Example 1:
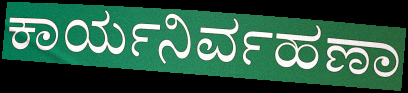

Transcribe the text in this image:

ಕಾರ್ಯನಿರ್ವಹಣಾ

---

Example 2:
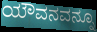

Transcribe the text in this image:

ಯೌವನವನ್ನೂ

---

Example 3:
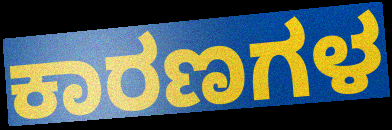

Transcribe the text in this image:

ಕಾರಣಗಳ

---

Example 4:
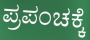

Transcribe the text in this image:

ಪ್ರಪಂಚಕ್ಕೆ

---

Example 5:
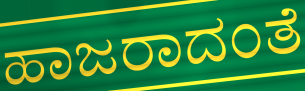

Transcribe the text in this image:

ಹಾಜರಾದಂತೆ